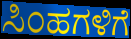
ಸಿಂಹಗಳಿಗೆ